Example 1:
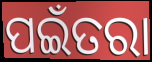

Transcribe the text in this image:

ପଇଁତରା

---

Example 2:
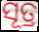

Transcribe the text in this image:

ସୂତ୍ର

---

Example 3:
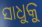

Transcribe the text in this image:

ସାଧୁକୁ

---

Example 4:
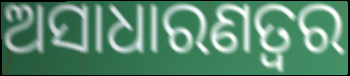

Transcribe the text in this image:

ଅସାଧାରଣତ୍ୱର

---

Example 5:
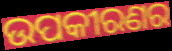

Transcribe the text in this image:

ଉପକୀରଣର